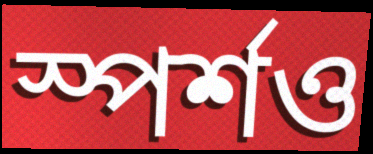
স্পর্শও